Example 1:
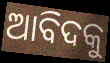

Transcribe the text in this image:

ଆବିଦକୁ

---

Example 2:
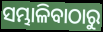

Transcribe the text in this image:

ସମ୍ଭାଳିବାଠାରୁ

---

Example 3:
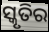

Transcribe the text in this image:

ସ୍କୃତିର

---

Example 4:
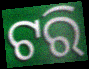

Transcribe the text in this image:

ଟରି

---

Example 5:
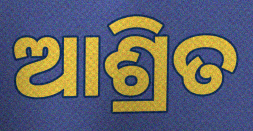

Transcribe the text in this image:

ଆଶ୍ରିତ